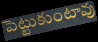
పెట్టుకుంటావు